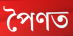
পৈণত